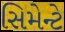
સિમેન્ટે